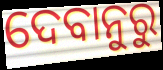
ଦେବାନୁରୁ